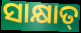
ସାକ୍ଷାତ୍